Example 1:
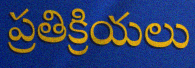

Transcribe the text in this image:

ప్రతిక్రియలు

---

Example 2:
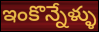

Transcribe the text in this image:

ఇంకొన్నేళ్ళు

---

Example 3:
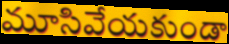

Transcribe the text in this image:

మూసివేయకుండా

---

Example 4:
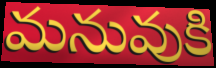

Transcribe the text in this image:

మనువుకి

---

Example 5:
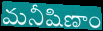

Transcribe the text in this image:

మనీషిణాం